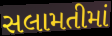
સલામતીમાં